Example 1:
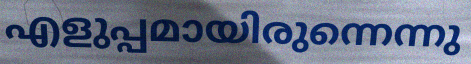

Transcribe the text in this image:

എളുപ്പമായിരുന്നെന്നു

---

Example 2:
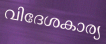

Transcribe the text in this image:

വിദേശകാര്യ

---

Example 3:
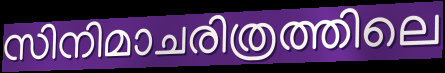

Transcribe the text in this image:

സിനിമാചരിത്രത്തിലെ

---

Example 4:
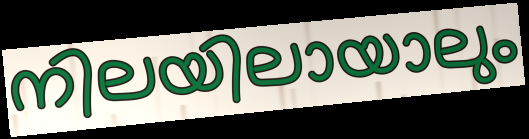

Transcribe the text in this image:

നിലയിലായാലും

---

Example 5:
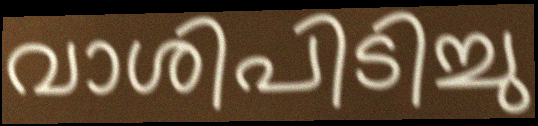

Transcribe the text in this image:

വാശിപിടിച്ചു